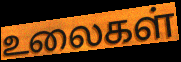
உலைகள்